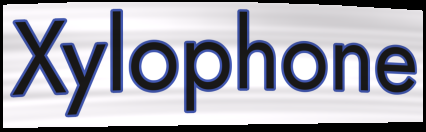
Xylophone